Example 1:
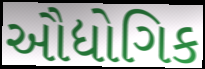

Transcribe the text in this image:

ઔદ્યોગિક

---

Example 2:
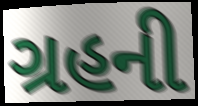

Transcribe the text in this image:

ગ્રહની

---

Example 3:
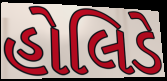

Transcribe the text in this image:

હોલિડે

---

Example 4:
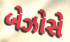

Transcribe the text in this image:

બેઝોસે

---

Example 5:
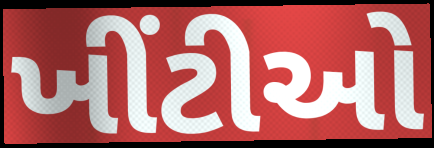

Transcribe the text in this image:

ખીંટીઓ